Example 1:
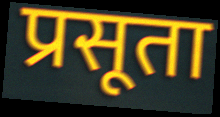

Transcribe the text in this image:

प्रसूता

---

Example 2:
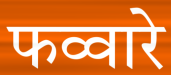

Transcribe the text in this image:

फव्वारे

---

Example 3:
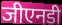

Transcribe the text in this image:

जीएनडी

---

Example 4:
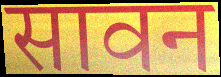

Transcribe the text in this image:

सावन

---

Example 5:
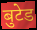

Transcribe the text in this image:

बुटेड